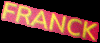
FRANCK